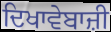
ਦਿਖਾਵੇਬਾਜ਼ੀ